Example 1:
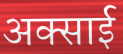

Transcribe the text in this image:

अक्साई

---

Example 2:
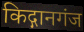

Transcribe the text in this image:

किद्गानगंज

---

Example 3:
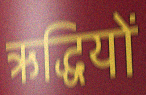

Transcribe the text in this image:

ऋद्धियों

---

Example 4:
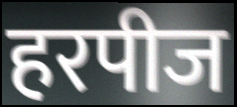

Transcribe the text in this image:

हरपीज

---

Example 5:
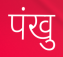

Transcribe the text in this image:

पंखु